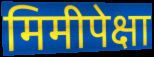
मिमीपेक्षा